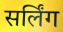
सर्लिंग